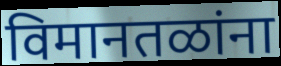
विमानतळांना